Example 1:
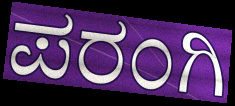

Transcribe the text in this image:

ಪರಂಗಿ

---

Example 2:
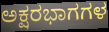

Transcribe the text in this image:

ಅಕ್ಷರಭಾಗಗಳ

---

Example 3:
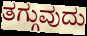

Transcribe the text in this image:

ತಗ್ಗುವುದು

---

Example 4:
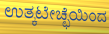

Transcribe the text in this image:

ಉತ್ಕಟೇಚ್ಛೆಯಿಂದ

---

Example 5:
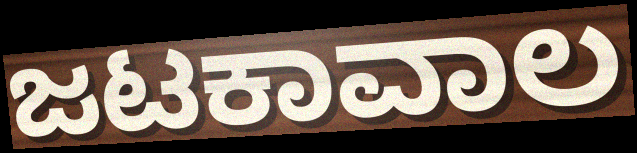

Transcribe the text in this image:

ಜಟಕಾವಾಲ